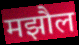
मझौल